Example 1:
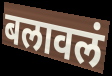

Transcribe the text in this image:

बलावलं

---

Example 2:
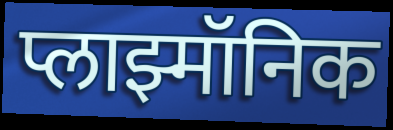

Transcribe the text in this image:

प्लाझ्मॉनिक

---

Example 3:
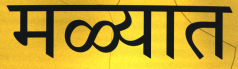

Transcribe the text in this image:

मळ्यात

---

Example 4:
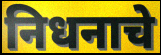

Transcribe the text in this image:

निधनाचे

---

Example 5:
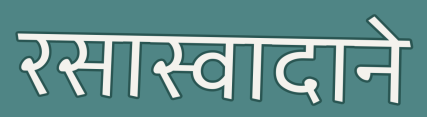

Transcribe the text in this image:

रसास्वादाने